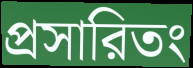
প্রসারিতং